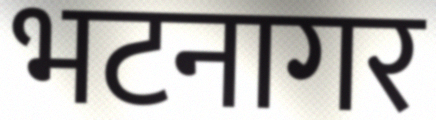
भटनागर